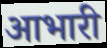
आभारी